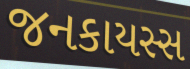
જનકાયસ્સ